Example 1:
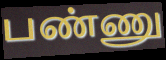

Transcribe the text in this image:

பண்ணு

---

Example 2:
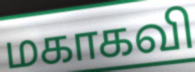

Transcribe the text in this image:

மகாகவி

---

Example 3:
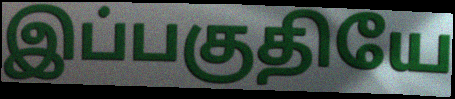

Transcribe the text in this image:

இப்பகுதியே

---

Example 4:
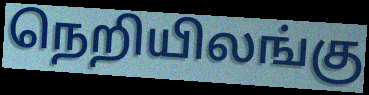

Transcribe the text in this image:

நெறியிலங்கு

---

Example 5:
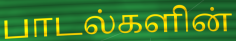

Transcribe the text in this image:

பாடல்களின்